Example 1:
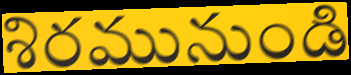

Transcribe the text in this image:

శిరమునుండి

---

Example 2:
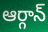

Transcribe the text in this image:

ఆర్గాన్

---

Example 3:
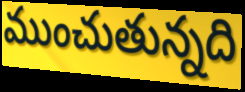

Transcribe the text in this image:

ముంచుతున్నది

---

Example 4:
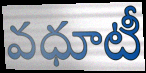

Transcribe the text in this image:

వధూటీ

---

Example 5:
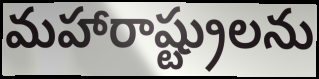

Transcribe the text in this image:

మహారాష్ట్రులను